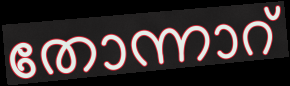
തോന്നാറ്